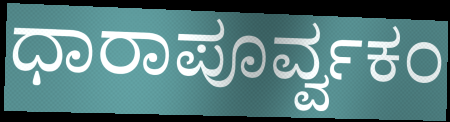
ಧಾರಾಪೂರ್ವ್ವಕಂ